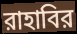
রাহাবির